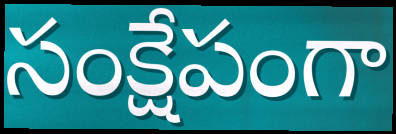
సంక్షేపంగా